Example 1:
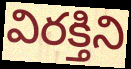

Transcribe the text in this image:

విరక్తిని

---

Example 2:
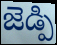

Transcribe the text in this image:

జెడ్పి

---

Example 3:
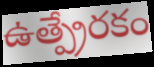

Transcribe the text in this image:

ఉత్ప్రేరకం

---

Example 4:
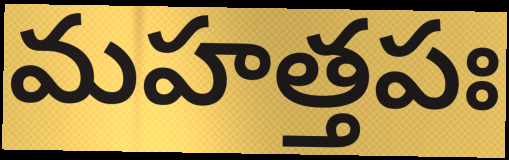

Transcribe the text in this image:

మహత్తపః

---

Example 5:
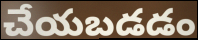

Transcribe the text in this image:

చేయబడడం